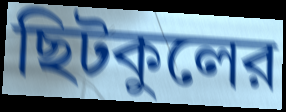
ছিটকুলের